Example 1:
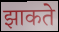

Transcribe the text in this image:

झाकते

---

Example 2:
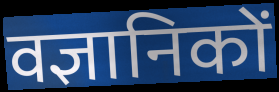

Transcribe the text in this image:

वज्ञानिकों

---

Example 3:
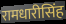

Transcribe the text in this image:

रामधारीसिंह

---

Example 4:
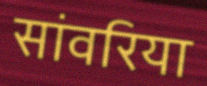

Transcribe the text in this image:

सांवरिया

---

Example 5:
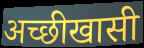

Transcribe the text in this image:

अच्छीखासी